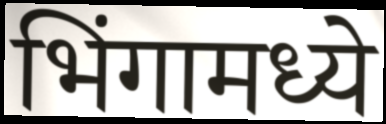
भिंगामध्ये